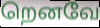
றெனவே